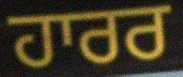
ਹਾਰਰ